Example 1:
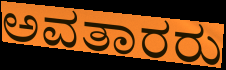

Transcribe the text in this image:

ಅವತಾರರು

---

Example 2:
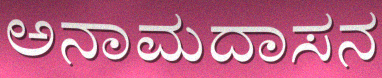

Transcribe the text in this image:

ಅನಾಮದಾಸನ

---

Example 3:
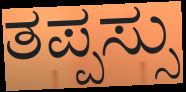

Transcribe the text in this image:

ತಪ್ಪಸ್ಸು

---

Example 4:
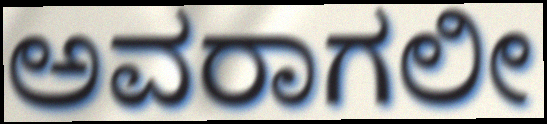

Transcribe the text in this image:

ಅವರಾಗಲೀ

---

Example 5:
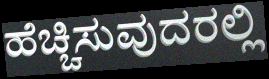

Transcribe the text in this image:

ಹೆಚ್ಚಿಸುವುದರಲ್ಲಿ